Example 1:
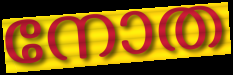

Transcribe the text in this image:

നോത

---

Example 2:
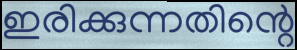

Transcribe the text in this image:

ഇരിക്കുന്നതിന്റെ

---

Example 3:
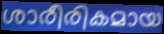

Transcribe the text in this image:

ശാരീരികമായ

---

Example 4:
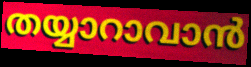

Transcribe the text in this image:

തയ്യാറാവാൻ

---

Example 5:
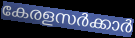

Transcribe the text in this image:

കേരളസർക്കാർ